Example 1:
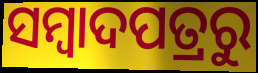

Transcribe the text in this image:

ସମ୍ବାଦପତ୍ରରୁ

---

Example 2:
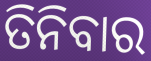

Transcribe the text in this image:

ତିନିବାର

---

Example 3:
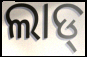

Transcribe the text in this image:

ଲାଡ୍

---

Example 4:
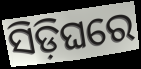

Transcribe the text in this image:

ସିଡ଼ିଘରେ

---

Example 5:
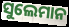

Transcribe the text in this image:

ସୁଲେମାନ